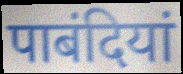
पाबंदियां